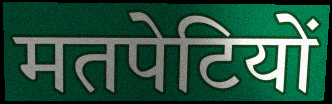
मतपेटियों